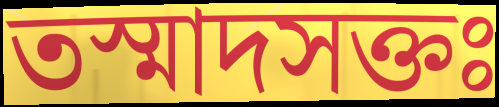
তস্মাদসক্তঃ